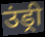
उंड्री